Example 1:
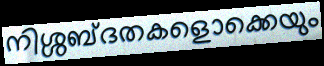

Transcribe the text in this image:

നിശ്ശബ്ദതകളൊക്കെയും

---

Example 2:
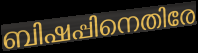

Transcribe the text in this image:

ബിഷപ്പിനെതിരേ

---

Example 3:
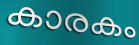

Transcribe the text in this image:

കാരകം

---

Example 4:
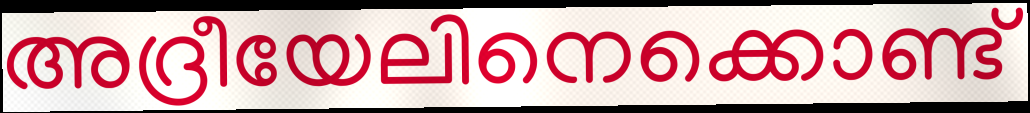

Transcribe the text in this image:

അദ്രീയേലിനെക്കൊണ്ട്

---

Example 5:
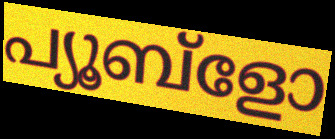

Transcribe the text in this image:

പ്യൂബ്ളോ